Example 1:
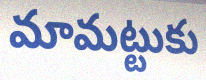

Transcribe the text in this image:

మామట్టుకు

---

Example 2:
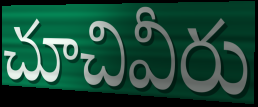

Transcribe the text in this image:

చూచివీరు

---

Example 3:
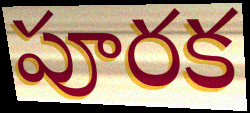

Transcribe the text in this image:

పూరక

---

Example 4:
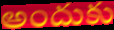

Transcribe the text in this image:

అందుకు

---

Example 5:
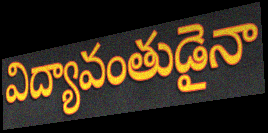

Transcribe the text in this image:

విద్యావంతుడైనా